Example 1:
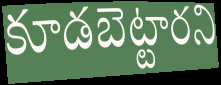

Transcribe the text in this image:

కూడబెట్టారని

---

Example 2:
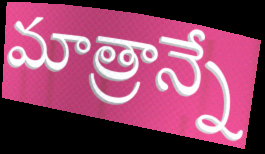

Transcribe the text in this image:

మాత్రాన్నే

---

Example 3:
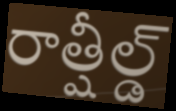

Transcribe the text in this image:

రాత్షీల్డ్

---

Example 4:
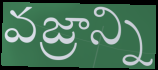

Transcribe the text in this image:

వజ్రాన్ని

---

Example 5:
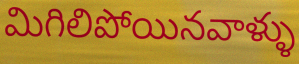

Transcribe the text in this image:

మిగిలిపోయినవాళ్ళు